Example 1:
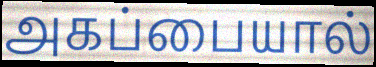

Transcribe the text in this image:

அகப்பையால்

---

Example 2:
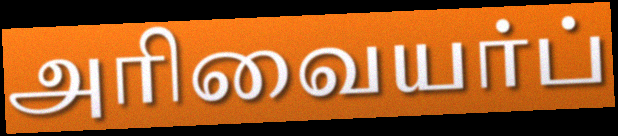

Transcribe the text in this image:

அரிவையர்ப்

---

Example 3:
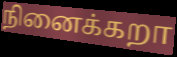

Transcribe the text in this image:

நினைக்கறா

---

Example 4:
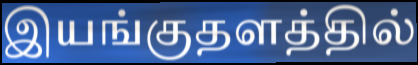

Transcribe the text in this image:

இயங்குதளத்தில்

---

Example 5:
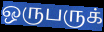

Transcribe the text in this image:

ஒருபருக்